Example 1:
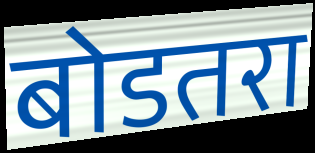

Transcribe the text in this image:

बोडतरा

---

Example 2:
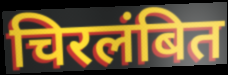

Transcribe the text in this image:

चिरलंबित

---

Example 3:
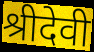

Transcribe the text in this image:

श्रीदेवी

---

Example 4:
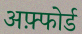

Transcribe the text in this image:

अफ़्फोर्ड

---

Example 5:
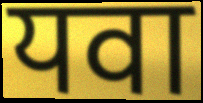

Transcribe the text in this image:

यवा